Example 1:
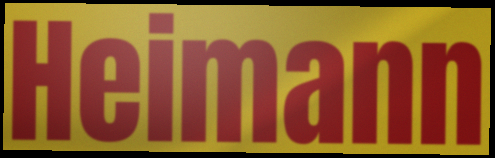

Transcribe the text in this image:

Heimann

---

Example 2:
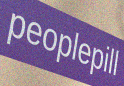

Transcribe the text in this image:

peoplepill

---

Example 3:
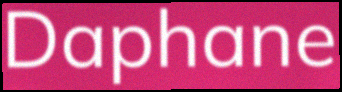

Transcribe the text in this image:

Daphane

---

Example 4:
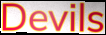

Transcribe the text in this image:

Devils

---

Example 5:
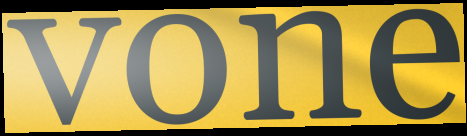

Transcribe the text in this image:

vone